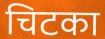
चिटका